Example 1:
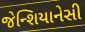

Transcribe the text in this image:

જેન્શિયાનેસી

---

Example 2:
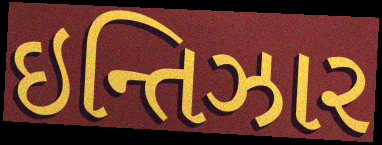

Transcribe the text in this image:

ઇન્તિઝાર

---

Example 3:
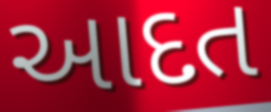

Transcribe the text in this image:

આદત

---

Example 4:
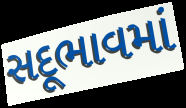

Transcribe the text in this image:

સદૂભાવમાં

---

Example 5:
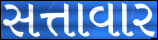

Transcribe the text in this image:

સત્તાવાર